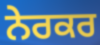
ਨੇਰਕਰ